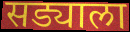
सड्याला